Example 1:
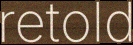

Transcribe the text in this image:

retold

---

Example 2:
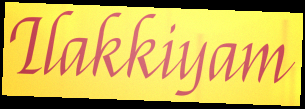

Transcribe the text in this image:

Ilakkiyam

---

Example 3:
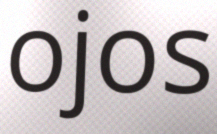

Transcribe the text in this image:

ojos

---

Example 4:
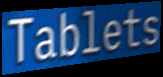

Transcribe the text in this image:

Tablets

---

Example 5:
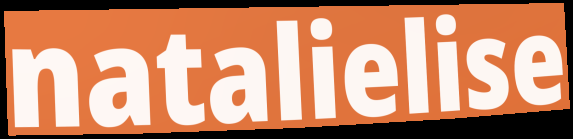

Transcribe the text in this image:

natalielise